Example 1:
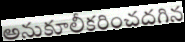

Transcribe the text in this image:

అనుకూలీకరించదగిన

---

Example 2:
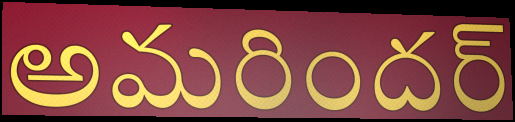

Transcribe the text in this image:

అమరిందర్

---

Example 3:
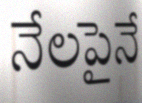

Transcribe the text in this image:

నేలపైనే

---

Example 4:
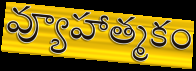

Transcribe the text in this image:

వ్యూహాత్మకం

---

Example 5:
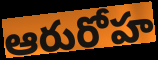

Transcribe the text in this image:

ఆరురోహ